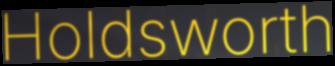
Holdsworth